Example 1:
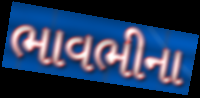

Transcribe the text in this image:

ભાવભીના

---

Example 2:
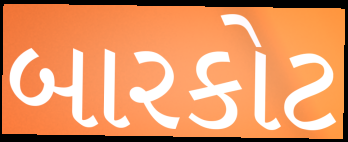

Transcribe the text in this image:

બારકોટ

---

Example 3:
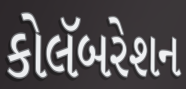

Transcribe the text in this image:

કોલૅબરેશન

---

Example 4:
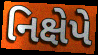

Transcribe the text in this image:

નિક્ષેપે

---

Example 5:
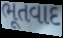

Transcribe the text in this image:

ભૂતવાદ